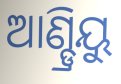
ଆଣ୍ଡ୍ରିୟୁ